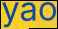
yao